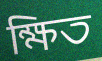
ক্ষিত